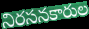
నిరసనకారుల